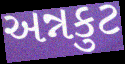
અન્નકુટ